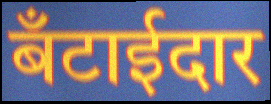
बँटाईदार